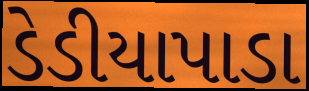
ડેડીયાપાડા